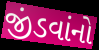
જીંડવાંનો